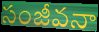
సంజీవనా